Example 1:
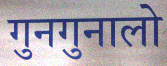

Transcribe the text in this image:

गुनगुनालो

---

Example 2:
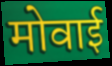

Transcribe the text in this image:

मोवाई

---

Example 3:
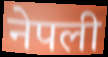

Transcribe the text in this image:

नेपली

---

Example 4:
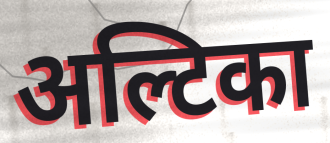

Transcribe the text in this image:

अल्टिका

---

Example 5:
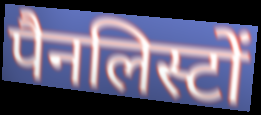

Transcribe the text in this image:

पैनलिस्टों